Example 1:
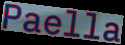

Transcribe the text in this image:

Paella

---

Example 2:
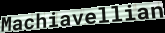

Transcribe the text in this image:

Machiavellian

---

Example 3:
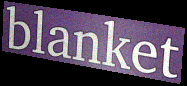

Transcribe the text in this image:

blanket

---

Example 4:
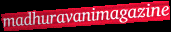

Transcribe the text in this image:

madhuravanimagazine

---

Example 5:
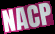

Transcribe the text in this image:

NACP